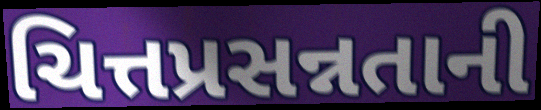
ચિત્તપ્રસન્નતાની